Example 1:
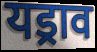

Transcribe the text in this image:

यड्राव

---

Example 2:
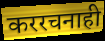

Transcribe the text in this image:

कररचनाही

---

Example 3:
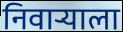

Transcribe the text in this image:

निवाऱ्याला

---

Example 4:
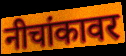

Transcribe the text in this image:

नीचांकावर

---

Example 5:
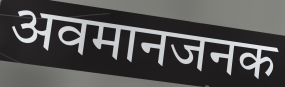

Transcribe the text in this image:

अवमानजनक